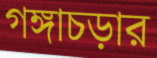
গঙ্গাচড়ার